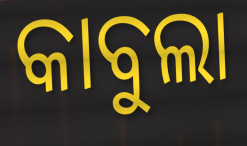
କାବୁଲା